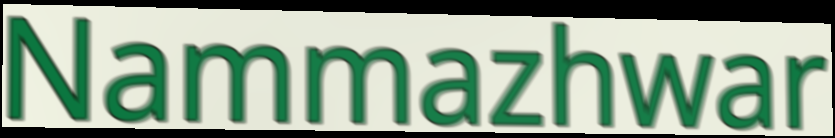
Nammazhwar